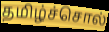
தமிழ்ச்சொல்